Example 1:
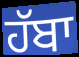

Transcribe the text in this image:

ਹੱਬਾ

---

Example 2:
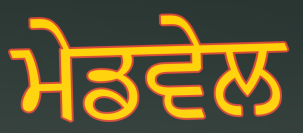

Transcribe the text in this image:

ਮੇਡਵੇਲ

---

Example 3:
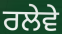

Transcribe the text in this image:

ਰਲੇਵੇ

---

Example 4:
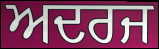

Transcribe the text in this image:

ਅਦਰਜ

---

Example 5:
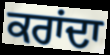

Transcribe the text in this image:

ਕਰਾਂਦਾ